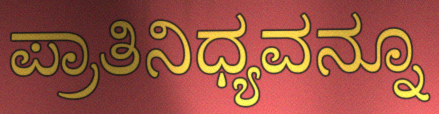
ಪ್ರಾತಿನಿಧ್ಯವನ್ನೂ